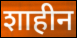
शाहीन